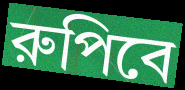
রুপিবে